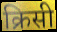
क्रिसी